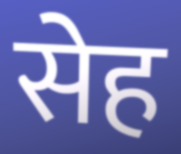
सेह